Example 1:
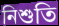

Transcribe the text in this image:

নিশুতি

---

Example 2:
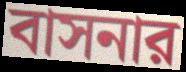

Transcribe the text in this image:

বাসনার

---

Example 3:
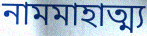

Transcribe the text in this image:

নামমাহাত্ম্য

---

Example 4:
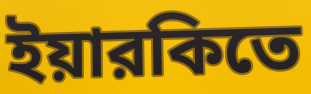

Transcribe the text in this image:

ইয়ারকিতে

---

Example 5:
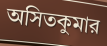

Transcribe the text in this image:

অসিতকুমার